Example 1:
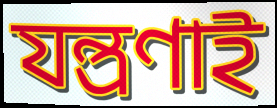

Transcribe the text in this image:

যন্ত্রণাই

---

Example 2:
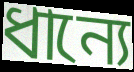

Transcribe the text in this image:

ধান্যে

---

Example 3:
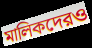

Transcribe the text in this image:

মালিকদেরও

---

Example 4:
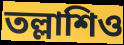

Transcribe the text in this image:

তল্লাশিও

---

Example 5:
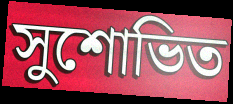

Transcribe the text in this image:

সুশোভিত